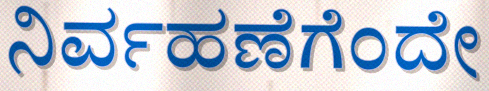
ನಿರ್ವಹಣೆಗೆಂದೇ